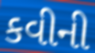
કવીની